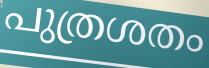
പുത്രശതം